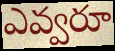
ఎవ్వరూ